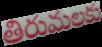
తిరుమలకు